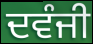
ਦਵੰਜੀ